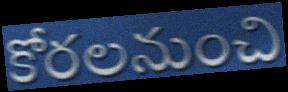
కోరలనుంచి